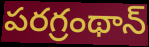
పరగ్రంథాన్